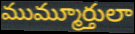
ముమ్మూర్తులా